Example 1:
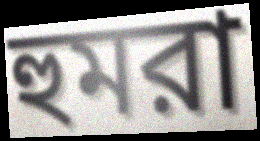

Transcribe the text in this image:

হুমরা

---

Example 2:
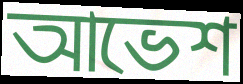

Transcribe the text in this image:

আভেশ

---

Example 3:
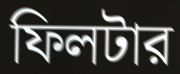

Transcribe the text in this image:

ফিলটার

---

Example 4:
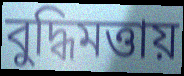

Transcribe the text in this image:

বুদ্ধিমত্তায়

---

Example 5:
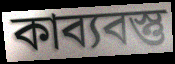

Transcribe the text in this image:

কাব্যবস্তু